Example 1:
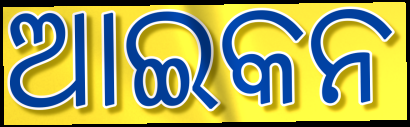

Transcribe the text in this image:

ଆଇକନ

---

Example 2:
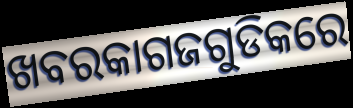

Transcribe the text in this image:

ଖବରକାଗଜଗୁଡିକରେ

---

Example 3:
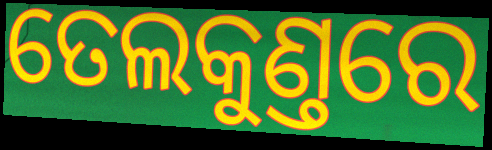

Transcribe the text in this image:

ତେଲକୁଣ୍ତରେ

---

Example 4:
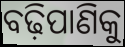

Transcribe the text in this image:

ବଢ଼ିପାଣିକୁ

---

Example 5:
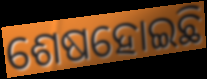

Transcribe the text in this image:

ଶେଷହୋଇଛି